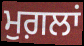
ਮੁਗ਼ਲਾਂ